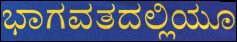
ಭಾಗವತದಲ್ಲಿಯೂ